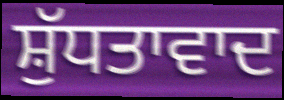
ਸ਼ੁੱਧਤਾਵਾਦ